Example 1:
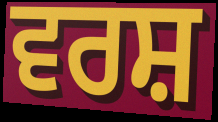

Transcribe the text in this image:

ਵਰਸ਼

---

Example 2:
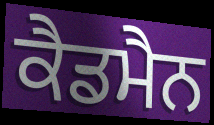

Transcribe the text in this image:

ਕੈਡਮੈਨ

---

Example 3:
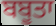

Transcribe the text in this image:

ਬਬੂਤਾ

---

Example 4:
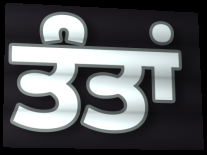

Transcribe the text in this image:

ਤੰਤਾਂ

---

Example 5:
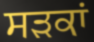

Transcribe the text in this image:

ਸੜਕਾਂ